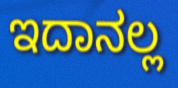
ಇದಾನಲ್ಲ